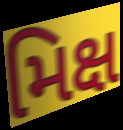
મિક્ષ